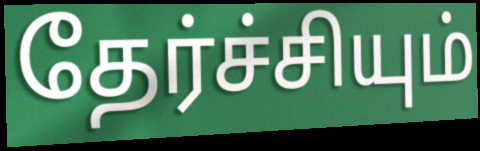
தேர்ச்சியும்